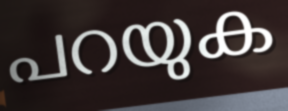
പറയുക